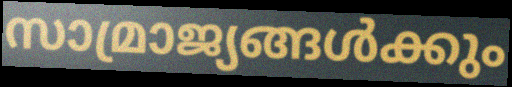
സാമ്രാജ്യങ്ങൾക്കും